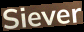
Siever